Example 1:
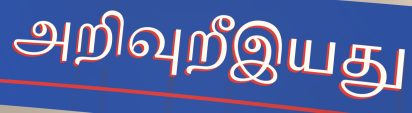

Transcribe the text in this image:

அறிவுறீஇயது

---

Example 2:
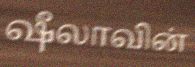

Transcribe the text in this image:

ஷீலாவின்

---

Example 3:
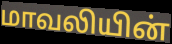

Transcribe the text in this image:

மாவலியின்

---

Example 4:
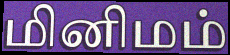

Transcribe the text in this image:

மினிமம்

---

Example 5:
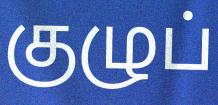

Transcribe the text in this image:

குழுப்